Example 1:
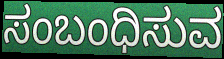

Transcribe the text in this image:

ಸಂಬಂಧಿಸುವ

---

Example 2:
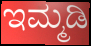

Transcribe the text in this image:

ಇಮ್ಮಡಿ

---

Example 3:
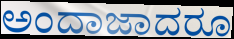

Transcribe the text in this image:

ಅಂದಾಜಾದರೂ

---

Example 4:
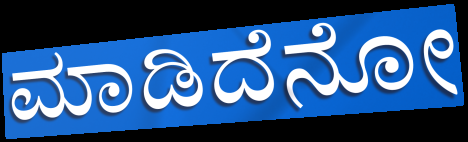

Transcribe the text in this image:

ಮಾಡಿದೆನೋ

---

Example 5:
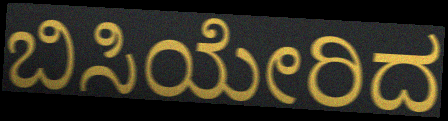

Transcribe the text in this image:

ಬಿಸಿಯೇರಿದ